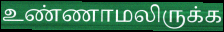
உண்ணாமலிருக்க